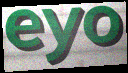
eyo